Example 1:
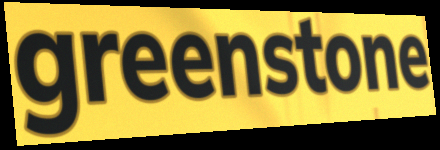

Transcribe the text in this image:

greenstone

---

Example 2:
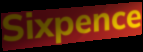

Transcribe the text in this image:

Sixpence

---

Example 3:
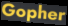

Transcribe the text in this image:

Gopher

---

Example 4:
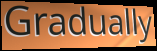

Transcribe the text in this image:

Gradually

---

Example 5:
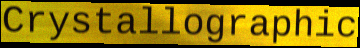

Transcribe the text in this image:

Crystallographic